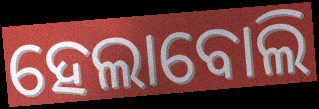
ହେଲାବୋଲି